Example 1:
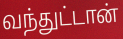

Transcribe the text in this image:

வந்துட்டான்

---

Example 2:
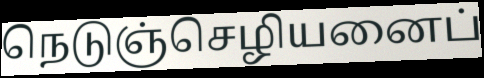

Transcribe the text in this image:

நெடுஞ்செழியனைப்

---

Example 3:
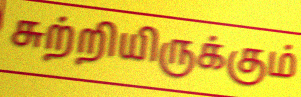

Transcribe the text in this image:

சுற்றியிருக்கும்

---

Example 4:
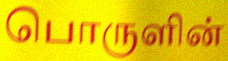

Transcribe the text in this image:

பொருளின்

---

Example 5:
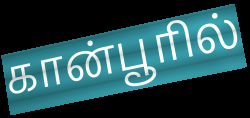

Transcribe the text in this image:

கான்பூரில்